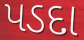
પડદા